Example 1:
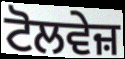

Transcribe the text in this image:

ਟੋਲਵੇਜ਼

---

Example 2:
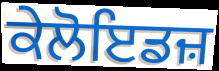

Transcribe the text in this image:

ਕੇਲੋਇਡਜ਼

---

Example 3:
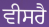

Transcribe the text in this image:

ਵੀਸਰੈ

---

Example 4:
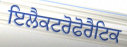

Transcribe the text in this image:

ਇਲੈਕਟਰੋਫੋਰੈਟਿਕ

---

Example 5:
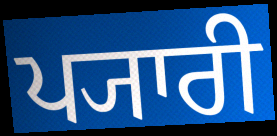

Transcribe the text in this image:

ਪ੍ਯਾਰੀ